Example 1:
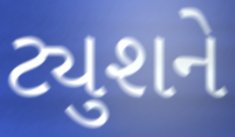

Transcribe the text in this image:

ટ્યુશને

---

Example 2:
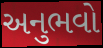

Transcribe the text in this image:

અનુભવો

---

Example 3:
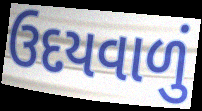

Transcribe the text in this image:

ઉદયવાળું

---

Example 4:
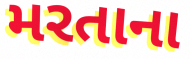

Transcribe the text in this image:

મરતાના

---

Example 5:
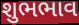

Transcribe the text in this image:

શુભભાવ